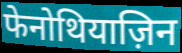
फेनोथियाज़िन